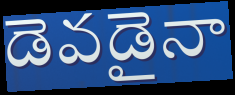
డెవడైనా